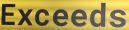
Exceeds